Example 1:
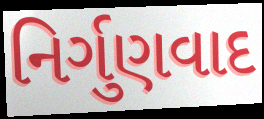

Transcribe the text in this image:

નિર્ગુણવાદ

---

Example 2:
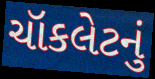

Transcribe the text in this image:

ચૉકલેટનું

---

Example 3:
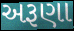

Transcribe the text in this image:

અરૂણા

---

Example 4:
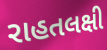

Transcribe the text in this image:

રાહતલક્ષી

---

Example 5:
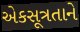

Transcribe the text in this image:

એકસૂત્રતાને